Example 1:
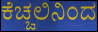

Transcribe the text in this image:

ಕೆಚ್ಚಲಿನಿಂದ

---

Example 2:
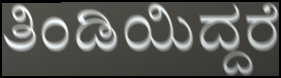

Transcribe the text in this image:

ತಿಂಡಿಯಿದ್ದರೆ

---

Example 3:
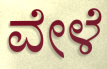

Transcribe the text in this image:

ವೇಳೆ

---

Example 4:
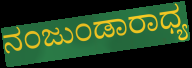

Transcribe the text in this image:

ನಂಜುಂಡಾರಾಧ್ಯ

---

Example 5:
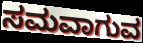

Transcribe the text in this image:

ಸಮವಾಗುವ